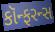
કૉન્ફરન્સ